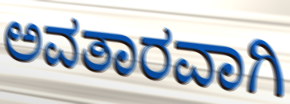
ಅವತಾರವಾಗಿ